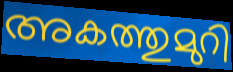
അകത്തുമുറി